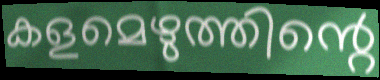
കളമെഴുത്തിന്റെ